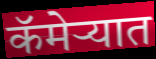
कॅमेर्‍यात